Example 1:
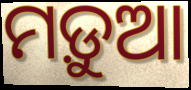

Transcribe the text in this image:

ମଡ଼ୁଆ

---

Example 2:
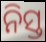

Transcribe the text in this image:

ନିସ୍ତ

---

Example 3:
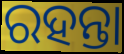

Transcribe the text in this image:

ରହନ୍ତା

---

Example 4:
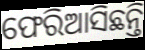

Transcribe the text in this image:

ଫେରିଆସିଛନ୍ତି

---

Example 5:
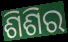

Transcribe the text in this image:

ଶିଶିର